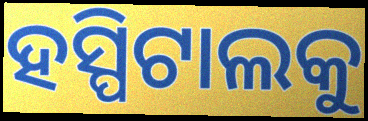
ହସ୍ପିଟାଲକୁ